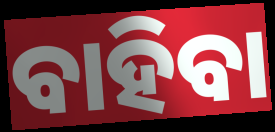
ବାହିବା